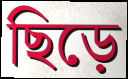
ছিড়ে